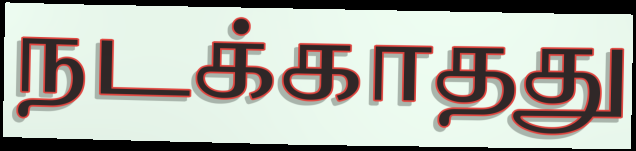
நடக்காதது